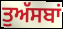
ਤੁਅੱਸਬਾਂ